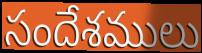
సందేశములు